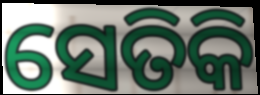
ସେତିକି